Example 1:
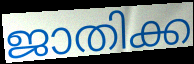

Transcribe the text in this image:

ജാതിക്ക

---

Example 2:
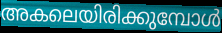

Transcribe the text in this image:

അകലെയിരിക്കുമ്പോൾ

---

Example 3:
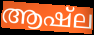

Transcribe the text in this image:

ആഷ്ല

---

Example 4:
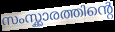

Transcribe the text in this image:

സംസ്ക്കാരത്തിന്റെ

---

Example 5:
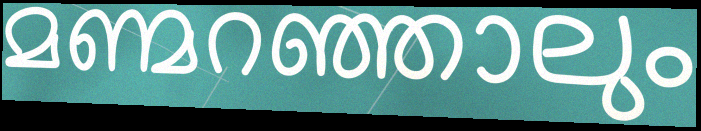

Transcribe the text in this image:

മണ്മറഞ്ഞാലും